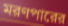
মরণপারের